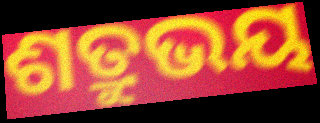
ଶତ୍ରୁଭୟ